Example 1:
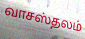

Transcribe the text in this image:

வாசஸ்தலம்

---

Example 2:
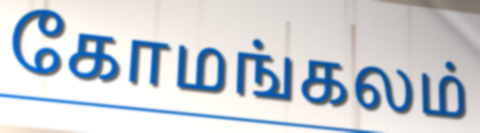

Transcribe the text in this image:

கோமங்கலம்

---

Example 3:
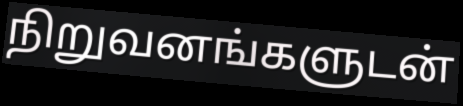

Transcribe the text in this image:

நிறுவனங்களுடன்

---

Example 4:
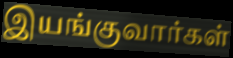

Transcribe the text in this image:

இயங்குவார்கள்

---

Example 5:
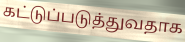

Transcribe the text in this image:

கட்டுப்படுத்துவதாக